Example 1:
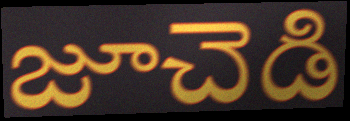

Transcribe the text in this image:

జూచెడి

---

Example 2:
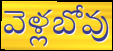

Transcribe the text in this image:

వెళ్లబోవు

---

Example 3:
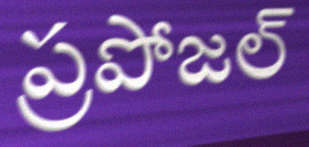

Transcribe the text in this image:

ప్రపోజల్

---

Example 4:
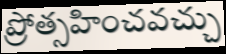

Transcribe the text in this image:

ప్రోత్సహించవచ్చు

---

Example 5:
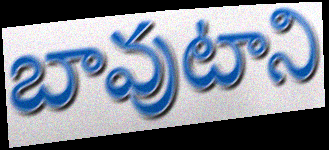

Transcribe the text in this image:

బావుటాని